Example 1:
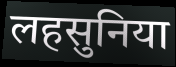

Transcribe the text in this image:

लहसुनिया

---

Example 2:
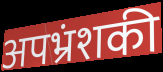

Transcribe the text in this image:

अपभ्रंशकी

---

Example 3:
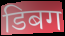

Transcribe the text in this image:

डिबग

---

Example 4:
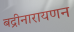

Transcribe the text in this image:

बद्रीनारायणन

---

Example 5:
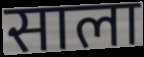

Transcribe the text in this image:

साला